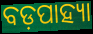
ବଡ଼ପାହ୍ୟା